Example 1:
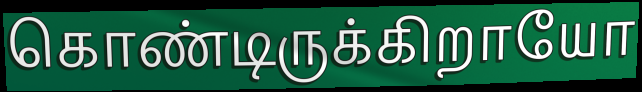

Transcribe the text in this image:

கொண்டிருக்கிறாயோ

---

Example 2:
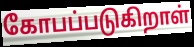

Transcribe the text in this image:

கோபப்படுகிறாள்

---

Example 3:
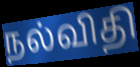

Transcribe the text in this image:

நல்விதி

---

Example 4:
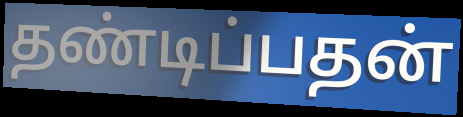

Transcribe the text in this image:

தண்டிப்பதன்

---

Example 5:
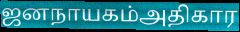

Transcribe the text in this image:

ஜனநாயகம்அதிகார